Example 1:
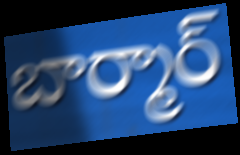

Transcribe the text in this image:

బార్మార్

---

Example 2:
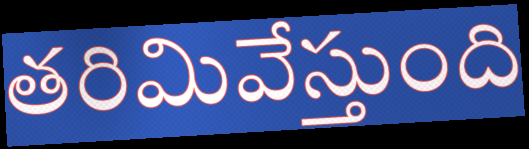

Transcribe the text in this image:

తరిమివేస్తుంది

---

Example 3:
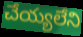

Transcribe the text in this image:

చేయ్యలేని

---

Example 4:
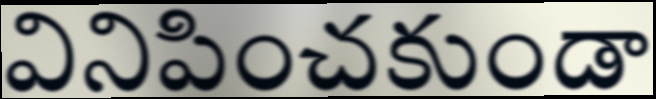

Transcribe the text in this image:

వినిపించకుండా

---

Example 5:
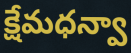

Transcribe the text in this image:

క్షేమధన్వా